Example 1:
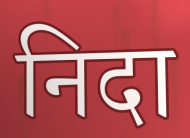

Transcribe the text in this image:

निदा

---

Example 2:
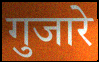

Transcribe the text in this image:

गुजारे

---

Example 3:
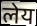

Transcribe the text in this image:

लेय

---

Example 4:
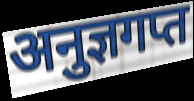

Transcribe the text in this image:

अनुज्ञगप्त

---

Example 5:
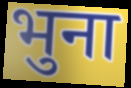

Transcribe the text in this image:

भुना